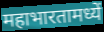
महाभारतामध्यें